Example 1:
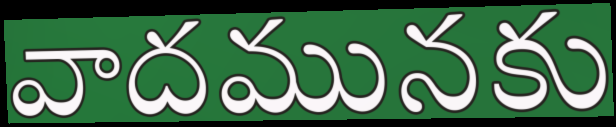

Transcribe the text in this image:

వాదమునకు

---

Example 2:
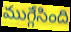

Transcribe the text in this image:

ముగ్గేసింది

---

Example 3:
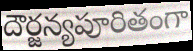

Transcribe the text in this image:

దౌర్జన్యపూరితంగా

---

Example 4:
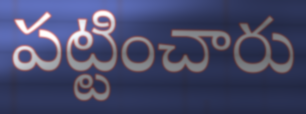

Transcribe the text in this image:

పట్టించారు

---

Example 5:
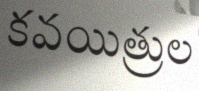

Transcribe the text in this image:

కవయిత్రుల